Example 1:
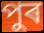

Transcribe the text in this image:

পুৰ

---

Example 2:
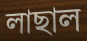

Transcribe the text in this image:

লাছাল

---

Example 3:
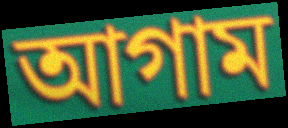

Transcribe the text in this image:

আগাম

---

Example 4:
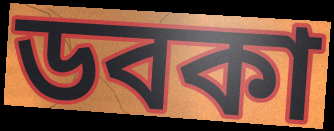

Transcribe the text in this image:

ডবকা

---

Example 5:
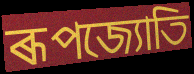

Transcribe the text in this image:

ৰূপজ্যোতি